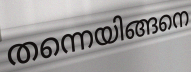
തന്നെയിങ്ങനെ